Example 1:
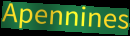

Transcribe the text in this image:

Apennines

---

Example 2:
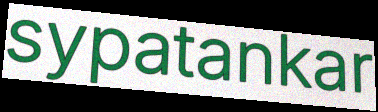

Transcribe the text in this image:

sypatankar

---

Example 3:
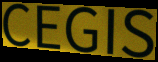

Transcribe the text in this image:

CEGIS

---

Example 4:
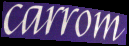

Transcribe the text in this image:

carrom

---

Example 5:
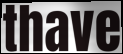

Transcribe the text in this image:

thave